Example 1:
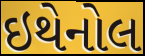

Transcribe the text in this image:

ઇથેનોલ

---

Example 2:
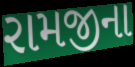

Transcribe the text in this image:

રામજીના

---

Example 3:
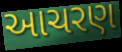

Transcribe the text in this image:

આચરણ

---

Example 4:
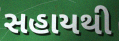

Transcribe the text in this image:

સહાયથી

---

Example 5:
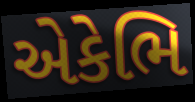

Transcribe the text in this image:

એકેભિ